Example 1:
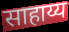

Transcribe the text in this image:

साहाय्य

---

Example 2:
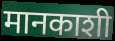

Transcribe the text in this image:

मानकाशी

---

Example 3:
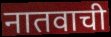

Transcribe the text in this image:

नातवाची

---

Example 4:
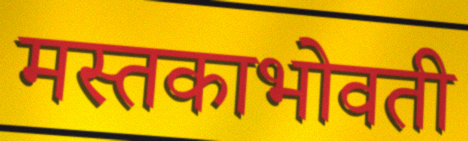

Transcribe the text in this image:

मस्तकाभोवती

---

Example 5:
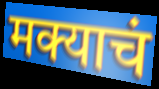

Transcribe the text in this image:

मक्याचं